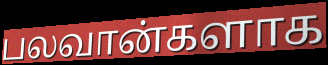
பலவான்களாக